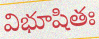
విభూషితః